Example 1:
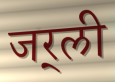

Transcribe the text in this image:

जर्ली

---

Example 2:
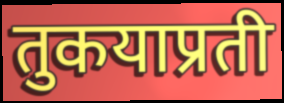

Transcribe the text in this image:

तुकयाप्रती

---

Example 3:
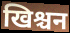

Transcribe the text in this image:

खिश्चन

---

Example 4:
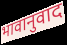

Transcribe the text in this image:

भावानुवाद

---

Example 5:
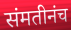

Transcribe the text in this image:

संमतीनंच